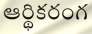
ఆర్థికరంగ